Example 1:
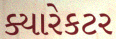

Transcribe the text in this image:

ક્યારેકટર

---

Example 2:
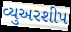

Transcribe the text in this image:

વ્યુઅરશીપ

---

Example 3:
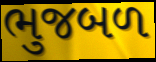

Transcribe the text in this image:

ભુજબળ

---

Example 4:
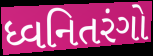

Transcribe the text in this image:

ધ્વનિતરંગો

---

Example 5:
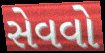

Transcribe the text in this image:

સેવવો